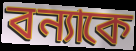
বন্যাকে